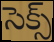
సెక్స్